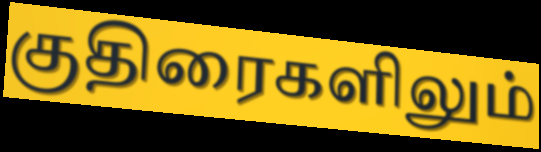
குதிரைகளிலும்